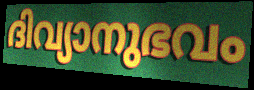
ദിവ്യാനുഭവം